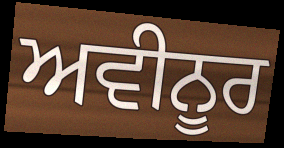
ਅਵੀਨੂਰ